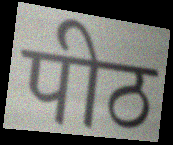
पीठ